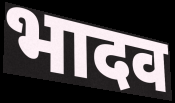
भादव